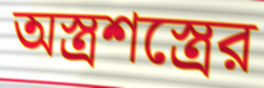
অস্ত্রশস্ত্রের